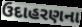
ઉદાહરણના